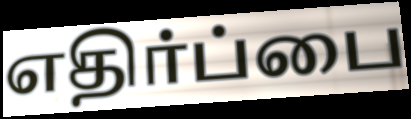
எதிர்ப்பை